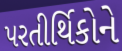
પરતીર્થિકોને